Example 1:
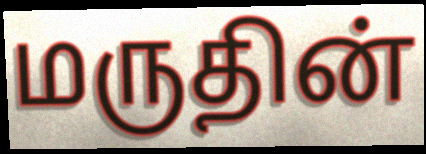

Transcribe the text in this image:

மருதின்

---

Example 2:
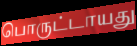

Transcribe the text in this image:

பொருட்டாயது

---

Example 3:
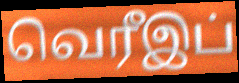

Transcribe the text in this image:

வெரீஇப்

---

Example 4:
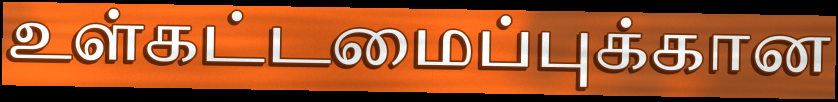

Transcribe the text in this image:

உள்கட்டமைப்புக்கான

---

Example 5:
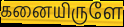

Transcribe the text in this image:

கனையிருளே